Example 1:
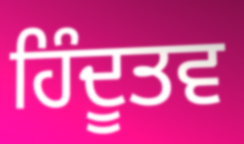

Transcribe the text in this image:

ਹਿੰਦੂਤਵ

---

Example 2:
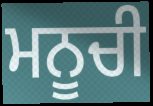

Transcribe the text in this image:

ਮਨੂਚੀ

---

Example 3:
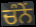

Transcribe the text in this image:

ਚੰਨੇਂ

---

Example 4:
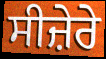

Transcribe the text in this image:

ਸੀਜ਼ੇਰੇ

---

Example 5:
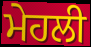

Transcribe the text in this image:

ਮੇਹਲੀ